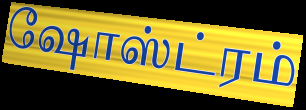
ஷோஸ்ட்ரம்